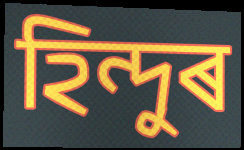
হিন্দুৰ